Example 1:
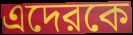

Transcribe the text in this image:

এদেরকে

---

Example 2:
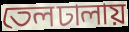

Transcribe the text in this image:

তেলঢালায়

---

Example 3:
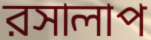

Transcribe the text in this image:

রসালাপ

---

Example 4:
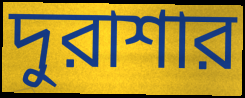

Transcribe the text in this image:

দুরাশার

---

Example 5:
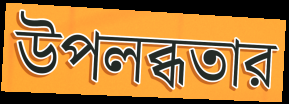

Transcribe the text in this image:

উপলব্ধতার